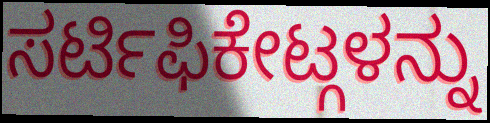
ಸರ್ಟಿಫಿಕೇಟ್ಗಳನ್ನು